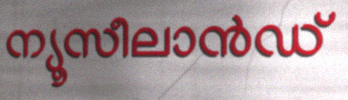
ന്യൂസീലാൻഡ്